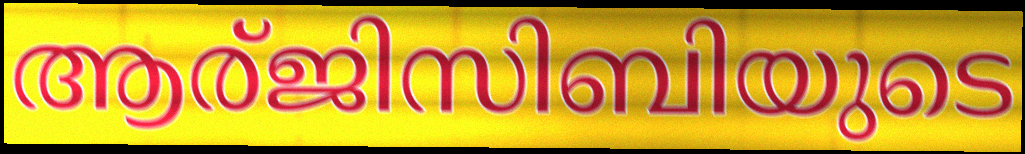
ആര്ജിസിബിയുടെ